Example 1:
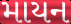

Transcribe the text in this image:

માયન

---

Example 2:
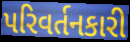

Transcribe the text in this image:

પરિવર્તનકારી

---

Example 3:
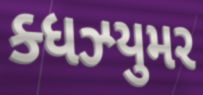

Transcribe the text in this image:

ક્ધઝ્યુમર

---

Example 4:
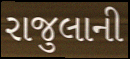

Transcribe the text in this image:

રાજુલાની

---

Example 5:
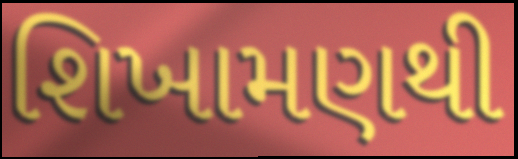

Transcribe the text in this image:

શિખામણથી